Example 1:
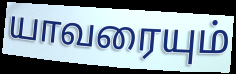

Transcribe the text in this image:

யாவரையும்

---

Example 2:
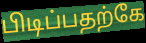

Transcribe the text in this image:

பிடிப்பதற்கே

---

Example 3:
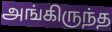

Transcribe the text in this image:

அங்கிருந்த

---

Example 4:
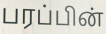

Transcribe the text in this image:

பரப்பின்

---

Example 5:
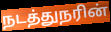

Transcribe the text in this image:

நடத்துநரின்